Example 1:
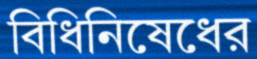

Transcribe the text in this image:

বিধিনিষেধের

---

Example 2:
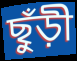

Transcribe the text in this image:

ছুঁড়ী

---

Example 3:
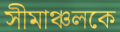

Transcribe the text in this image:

সীমাঞ্চলকে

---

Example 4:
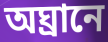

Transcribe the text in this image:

অঘ্রানে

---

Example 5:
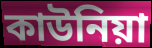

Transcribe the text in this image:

কাউনিয়া